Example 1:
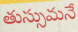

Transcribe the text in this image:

తుస్సుమనే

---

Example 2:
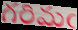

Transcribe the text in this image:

గరిమఁ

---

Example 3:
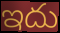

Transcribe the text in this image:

ఇదు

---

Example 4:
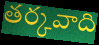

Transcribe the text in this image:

తర్కవాది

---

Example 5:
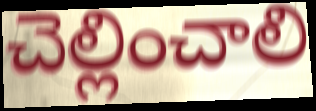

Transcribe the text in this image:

చెల్లించాలి